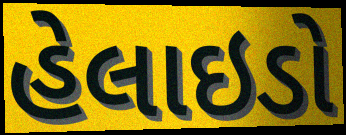
હેલાઇડો